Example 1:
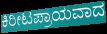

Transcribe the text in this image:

ಕಿರೀಟಪ್ರಾಯವಾದ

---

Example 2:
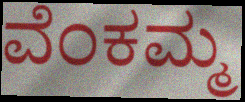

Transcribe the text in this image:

ವೆಂಕಮ್ಮ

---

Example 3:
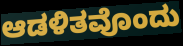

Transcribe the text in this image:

ಆಡಳಿತವೊಂದು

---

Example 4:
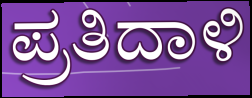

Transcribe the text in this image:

ಪ್ರತಿದಾಳಿ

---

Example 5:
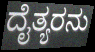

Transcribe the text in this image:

ದೈತ್ಯರನು